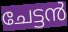
ചേട്ടൻ